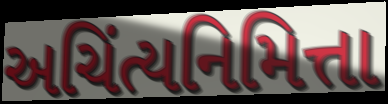
અચિંત્યનિમિત્તા